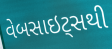
વેબસાઇટ્સથી